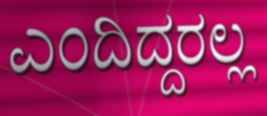
ಎಂದಿದ್ದರಲ್ಲ